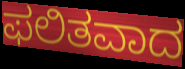
ಫಲಿತವಾದ